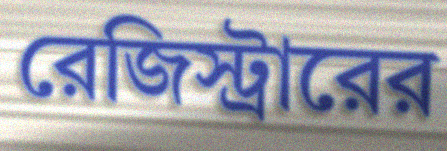
রেজিস্ট্রারের